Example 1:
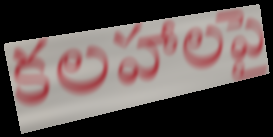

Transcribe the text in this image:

కలహాలపై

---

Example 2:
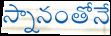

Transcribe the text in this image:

స్నానంతోనే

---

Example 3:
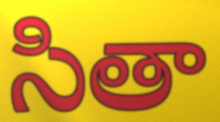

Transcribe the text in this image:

సితా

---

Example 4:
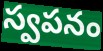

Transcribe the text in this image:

స్వపనం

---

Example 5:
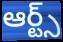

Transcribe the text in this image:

ఆర్ట్స్